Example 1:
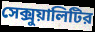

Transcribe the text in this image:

সেক্সুয়ালিটির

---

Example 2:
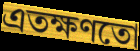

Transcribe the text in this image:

এতক্ষণতো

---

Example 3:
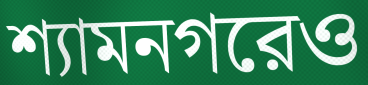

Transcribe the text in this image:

শ্যামনগরেও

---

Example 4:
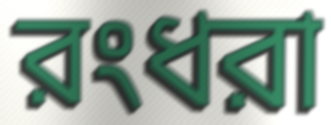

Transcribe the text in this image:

রংধরা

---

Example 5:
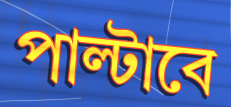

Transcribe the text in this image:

পাল্টাবে